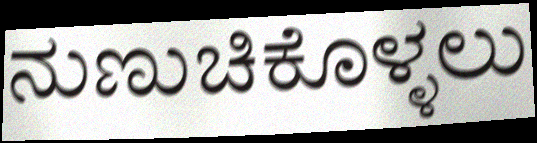
ನುಣುಚಿಕೊಳ್ಳಲು